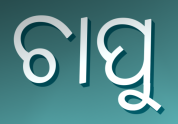
ଚାପୁ